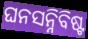
ଘନସନ୍ନିବିଷ୍ଟ